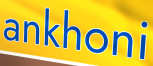
ankhoni